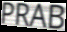
PRAB